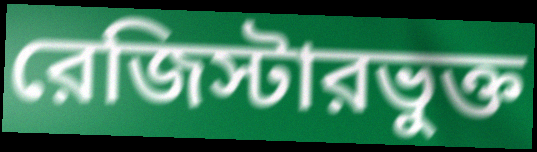
রেজিস্টারভুক্ত